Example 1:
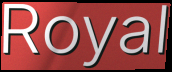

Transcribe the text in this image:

Royal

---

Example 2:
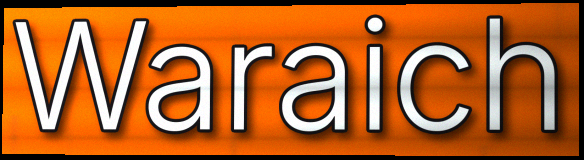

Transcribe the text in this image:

Waraich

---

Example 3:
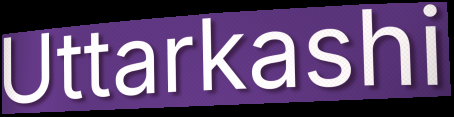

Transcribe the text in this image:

Uttarkashi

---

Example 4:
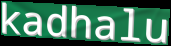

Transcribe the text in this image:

kadhalu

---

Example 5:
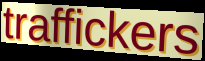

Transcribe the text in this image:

traffickers